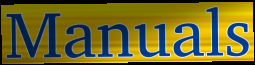
Manuals